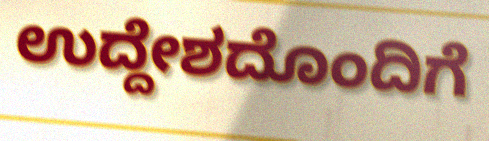
ಉದ್ದೇಶದೊಂದಿಗೆ